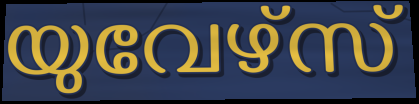
യുവേഴ്സ്